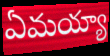
ఏమయ్యా